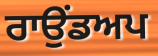
ਰਾਉਂਡਅਪ